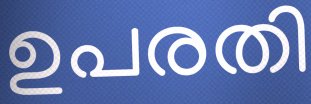
ഉപരതി